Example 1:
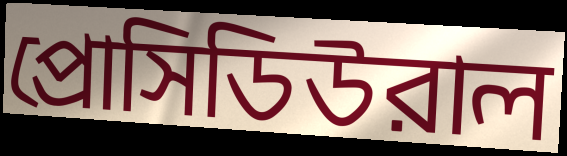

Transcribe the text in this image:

প্রোসিডিউরাল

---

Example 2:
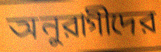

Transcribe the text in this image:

অনুরাগীদের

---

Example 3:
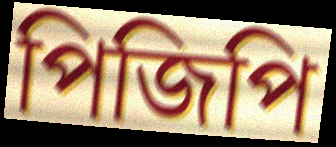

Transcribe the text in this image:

পিজিপি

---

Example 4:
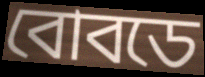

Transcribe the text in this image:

বোবডে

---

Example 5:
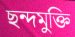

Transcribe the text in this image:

ছন্দমুক্তি